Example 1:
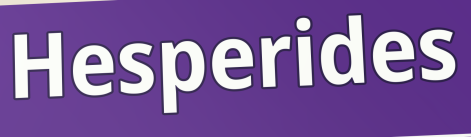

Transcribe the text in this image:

Hesperides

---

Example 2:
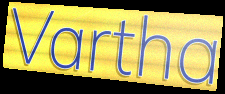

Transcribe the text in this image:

Vartha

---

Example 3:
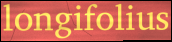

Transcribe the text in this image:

longifolius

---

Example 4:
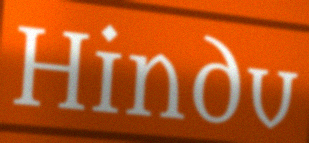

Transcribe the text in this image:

Hindu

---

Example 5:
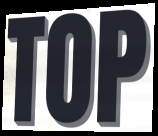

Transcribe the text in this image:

TOP